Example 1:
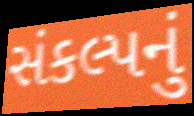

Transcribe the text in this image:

સંકલ્પનું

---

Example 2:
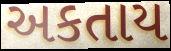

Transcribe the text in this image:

અકતાય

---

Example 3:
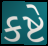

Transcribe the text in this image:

કષ્ટે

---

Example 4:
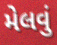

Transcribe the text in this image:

મેલવું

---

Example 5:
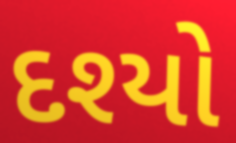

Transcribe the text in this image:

દશ્યો